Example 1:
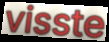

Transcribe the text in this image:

visste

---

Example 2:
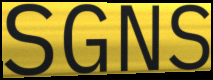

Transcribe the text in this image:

SGNS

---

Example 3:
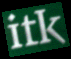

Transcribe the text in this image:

itk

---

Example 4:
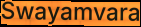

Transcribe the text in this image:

Swayamvara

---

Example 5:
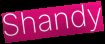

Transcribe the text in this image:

Shandy